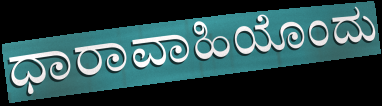
ಧಾರಾವಾಹಿಯೊಂದು